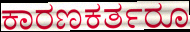
ಕಾರಣಕರ್ತರೂ